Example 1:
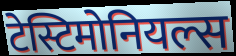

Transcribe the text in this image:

टेस्टिमोनियल्स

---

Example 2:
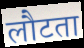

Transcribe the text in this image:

लौटता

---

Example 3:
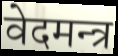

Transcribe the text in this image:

वेदमन्त्र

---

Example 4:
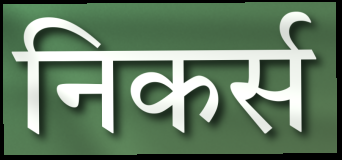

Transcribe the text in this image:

निकर्स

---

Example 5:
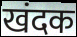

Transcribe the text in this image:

खंदक